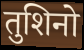
तुशिनो